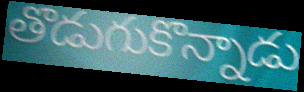
తొడుగుకొన్నాడు